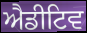
ਐਡੀਟਿਵ